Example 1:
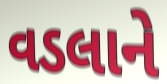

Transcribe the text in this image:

વડલાને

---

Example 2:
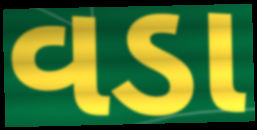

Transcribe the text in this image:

વડા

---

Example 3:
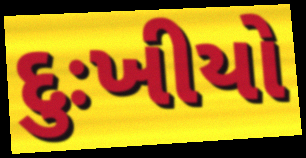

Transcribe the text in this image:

દુઃખીયો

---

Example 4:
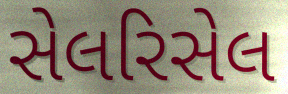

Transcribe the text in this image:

સેલરિસેલ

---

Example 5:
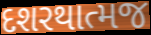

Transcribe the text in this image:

દશરથાત્મજ